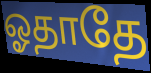
ஓதாதே